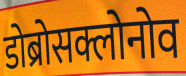
डोब्रोसक्लोनोव